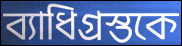
ব্যাধিগ্রস্তকে